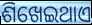
ଶିଖେଇଥାଏ